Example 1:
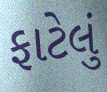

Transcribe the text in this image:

ફાટેલું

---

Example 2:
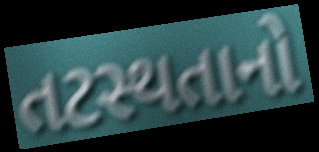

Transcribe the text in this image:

તટસ્થતાનો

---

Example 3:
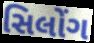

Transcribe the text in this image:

સિલોંગ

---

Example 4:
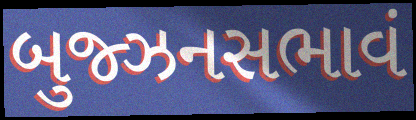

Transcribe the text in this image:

બુજ્ઝનસભાવં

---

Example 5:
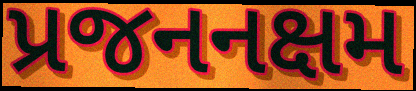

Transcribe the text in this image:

પ્રજનનક્ષમ